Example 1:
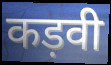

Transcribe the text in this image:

कड़वी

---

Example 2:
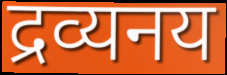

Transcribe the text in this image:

द्रव्यनय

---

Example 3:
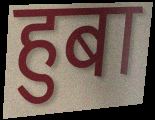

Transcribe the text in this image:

हुबा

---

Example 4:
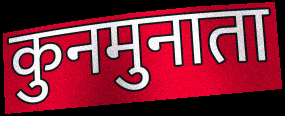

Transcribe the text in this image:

कुनमुनाता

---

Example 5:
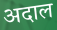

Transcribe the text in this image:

अदाल